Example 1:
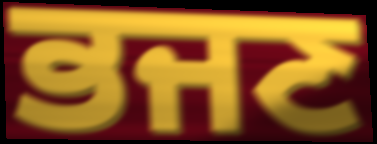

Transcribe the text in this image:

ਭਜਣ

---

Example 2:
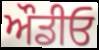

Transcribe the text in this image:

ਔਡੀਓ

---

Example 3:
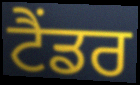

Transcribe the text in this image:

ਟੈਂਡਰ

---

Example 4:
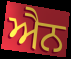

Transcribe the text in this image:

ਐਨ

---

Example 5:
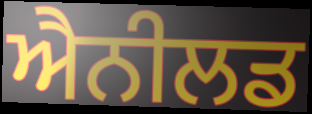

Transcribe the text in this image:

ਐਨੀਲਡ